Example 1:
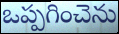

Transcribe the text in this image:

ఒప్పగించెను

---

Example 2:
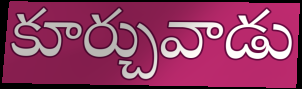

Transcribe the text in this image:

కూర్చువాడు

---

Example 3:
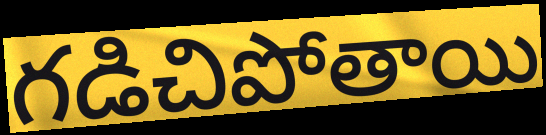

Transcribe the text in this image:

గడిచిపోతాయి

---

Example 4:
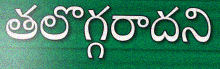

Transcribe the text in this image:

తలొగ్గరాదని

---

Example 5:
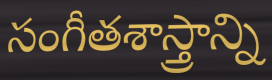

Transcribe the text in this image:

సంగీతశాస్త్రాన్ని